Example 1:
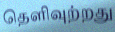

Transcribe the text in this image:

தெளிவுற்றது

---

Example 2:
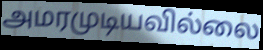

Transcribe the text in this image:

அமரமுடியவில்லை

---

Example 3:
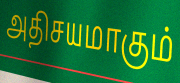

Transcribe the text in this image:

அதிசயமாகும்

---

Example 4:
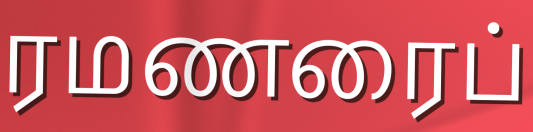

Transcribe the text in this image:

ரமணரைப்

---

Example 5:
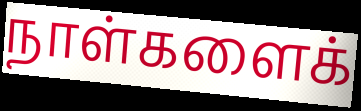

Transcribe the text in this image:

நாள்களைக்